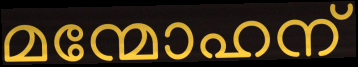
മന്മോഹന്